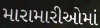
મારામારીઓમાં